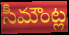
సీమౌంట్ల